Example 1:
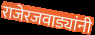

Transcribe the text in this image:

राजेरजवाड्यांनी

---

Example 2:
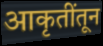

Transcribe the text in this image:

आकृतींतून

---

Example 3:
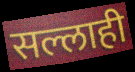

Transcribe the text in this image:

सल्लाही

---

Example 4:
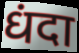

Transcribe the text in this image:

धंदा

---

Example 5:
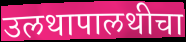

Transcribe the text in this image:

उलथापालथीचा